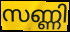
സണ്ണി